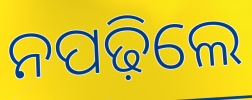
ନପଢ଼ିଲେ